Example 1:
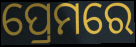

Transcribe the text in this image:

ପ୍ରେମରେ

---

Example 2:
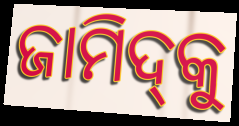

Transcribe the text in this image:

ଜାମିଦ୍‌କୁ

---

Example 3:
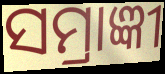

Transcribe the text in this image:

ସମ୍ରାଜ୍ଞୀ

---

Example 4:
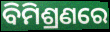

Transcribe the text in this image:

ବିମିଶ୍ରଣରେ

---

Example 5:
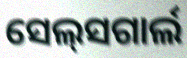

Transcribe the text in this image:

ସେଲ୍‍ସଗାର୍ଲ